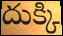
దుక్కి